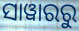
ସାୱାରରୁ